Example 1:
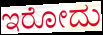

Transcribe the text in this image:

ಇರೋದು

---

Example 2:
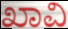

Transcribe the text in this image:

ಖಾವಿ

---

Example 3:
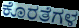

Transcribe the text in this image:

ಕೊರತೆಗಳ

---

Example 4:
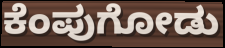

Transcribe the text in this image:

ಕೆಂಪುಗೋಡು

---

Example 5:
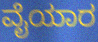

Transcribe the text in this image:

ವೈಯಾರ